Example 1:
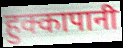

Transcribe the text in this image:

हुक्कापानी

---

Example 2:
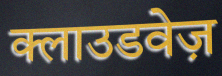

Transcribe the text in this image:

क्लाउडवेज़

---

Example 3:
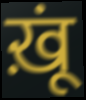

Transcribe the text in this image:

ख़ूं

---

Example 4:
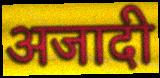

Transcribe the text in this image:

अजादी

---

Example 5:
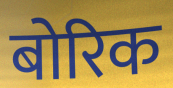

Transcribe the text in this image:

बोरिक